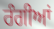
ਰੰਗੀਆਂ